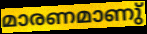
മാരണമാണു്